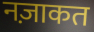
नज़ाकत